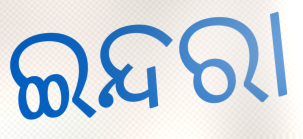
ଇନ୍ଦରା